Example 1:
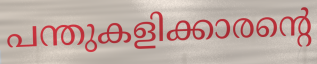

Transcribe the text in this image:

പന്തുകളിക്കാരന്റെ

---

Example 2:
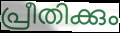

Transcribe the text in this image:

പ്രീതിക്കും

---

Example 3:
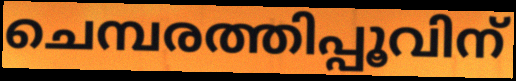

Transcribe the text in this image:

ചെമ്പരത്തിപ്പൂവിന്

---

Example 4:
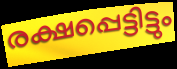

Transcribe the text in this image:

രക്ഷപ്പെട്ടിട്ടും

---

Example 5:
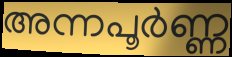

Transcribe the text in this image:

അന്നപൂർണ്ണ